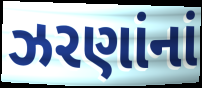
ઝરણાંનાં